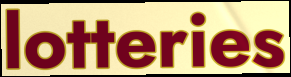
lotteries